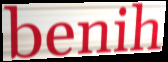
benih